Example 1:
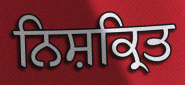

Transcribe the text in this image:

ਨਿਸ਼ਕ੍ਰਿਤ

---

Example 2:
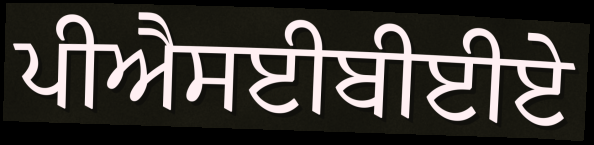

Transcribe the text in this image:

ਪੀਐਸਈਬੀਈਏ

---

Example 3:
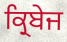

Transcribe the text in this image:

ਕ੍ਰਿਬੇਜ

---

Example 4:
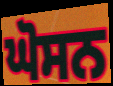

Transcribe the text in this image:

ਘੋਸਨ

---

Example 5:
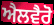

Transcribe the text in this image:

ਐਲਵੈਰੋ